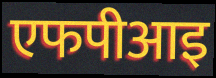
एफपीआइ